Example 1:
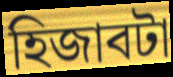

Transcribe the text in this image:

হিজাবটা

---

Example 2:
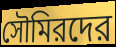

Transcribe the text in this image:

সৌমিরদের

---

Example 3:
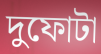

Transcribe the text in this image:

দুফোটা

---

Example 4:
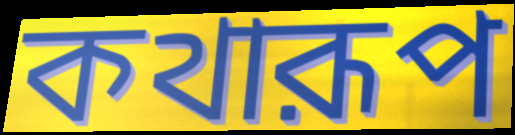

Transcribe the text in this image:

কথারূপ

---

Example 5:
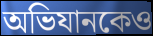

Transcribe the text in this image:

অভিযানকেও